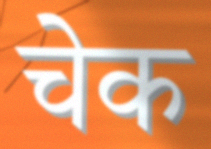
चेक